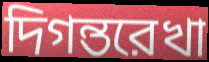
দিগন্তরেখা